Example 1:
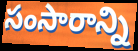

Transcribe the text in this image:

సంసారాన్ని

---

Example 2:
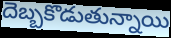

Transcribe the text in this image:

దెబ్బకొడుతున్నాయి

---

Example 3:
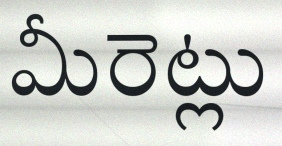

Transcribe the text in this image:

మీరెట్లు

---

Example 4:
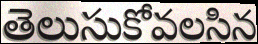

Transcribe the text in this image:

తెలుసుకోవలసిన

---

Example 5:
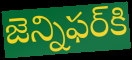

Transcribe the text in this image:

జెన్నిఫర్‌కి